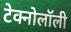
टेक्नोलॉली